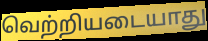
வெற்றியடையாது